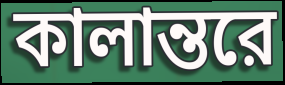
কালান্তরে